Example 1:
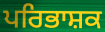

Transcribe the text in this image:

ਪਰਿਭਾਸ਼ਕ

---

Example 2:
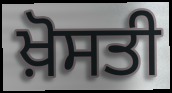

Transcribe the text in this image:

ਖ਼ੋਸਤੀ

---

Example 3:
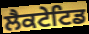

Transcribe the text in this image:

ਲੈਕਟੇਟਿਡ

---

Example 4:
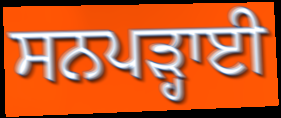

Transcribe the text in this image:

ਸਨਪੜ੍ਹਾਈ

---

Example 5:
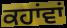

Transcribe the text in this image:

ਕਹਾਂਵਾਂ